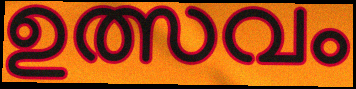
ഉത്സവം